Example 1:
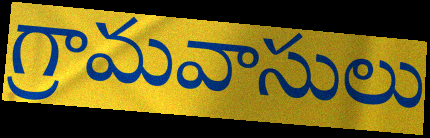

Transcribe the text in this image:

గ్రామవాసులు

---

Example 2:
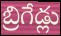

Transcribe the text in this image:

బ్రిగేడ్లు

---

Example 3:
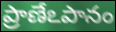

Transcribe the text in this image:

ప్రాణేఽపానం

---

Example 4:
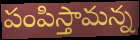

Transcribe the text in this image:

పంపిస్తామన్న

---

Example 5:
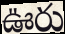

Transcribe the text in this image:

ఊరు